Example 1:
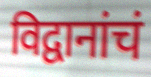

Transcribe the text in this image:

विद्वानांचं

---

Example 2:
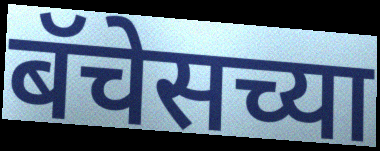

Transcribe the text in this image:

बॅचेसच्या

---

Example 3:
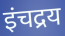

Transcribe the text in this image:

इंचद्रय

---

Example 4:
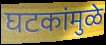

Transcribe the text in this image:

घटकांमुळे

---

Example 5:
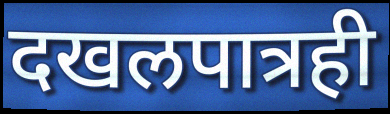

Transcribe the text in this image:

दखलपात्रही